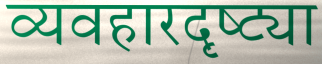
व्यवहारदृष्ट्या